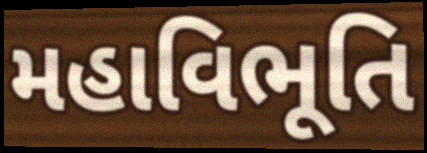
મહાવિભૂતિ